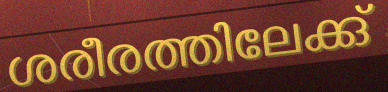
ശരീരത്തിലേക്കു്